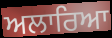
ਅਲਾਰਿਆ